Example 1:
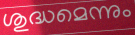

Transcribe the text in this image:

ശുദ്ധമെന്നും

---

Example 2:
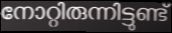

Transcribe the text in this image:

നോറ്റിരുന്നിട്ടുണ്ട്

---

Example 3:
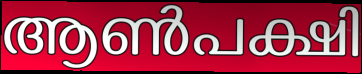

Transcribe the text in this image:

ആൺപക്ഷി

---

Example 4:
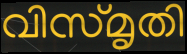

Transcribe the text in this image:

വിസ്മൃതി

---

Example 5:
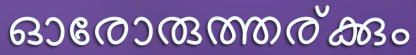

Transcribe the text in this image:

ഓരോരുത്തര്ക്കും